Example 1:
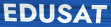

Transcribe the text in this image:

EDUSAT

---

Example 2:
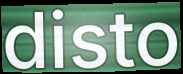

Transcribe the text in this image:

disto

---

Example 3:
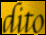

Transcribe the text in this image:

dito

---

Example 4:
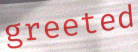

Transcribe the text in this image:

greeted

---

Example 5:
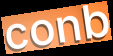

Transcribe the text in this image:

conb